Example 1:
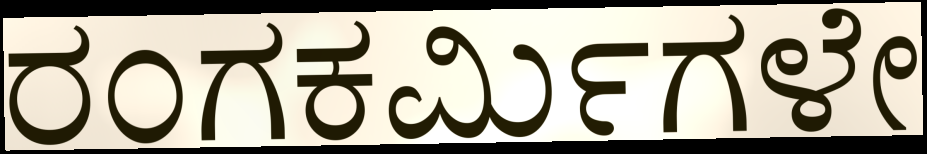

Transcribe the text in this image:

ರಂಗಕರ್ಮಿಗಳೇ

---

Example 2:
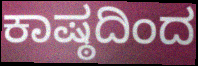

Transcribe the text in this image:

ಕಾಷ್ಠದಿಂದ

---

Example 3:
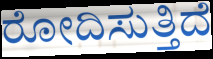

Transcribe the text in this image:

ರೋದಿಸುತ್ತಿದೆ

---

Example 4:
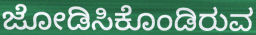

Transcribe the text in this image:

ಜೋಡಿಸಿಕೊಂಡಿರುವ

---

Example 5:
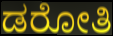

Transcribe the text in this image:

ಡರೋತಿ